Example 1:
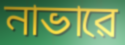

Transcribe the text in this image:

নাভাৱে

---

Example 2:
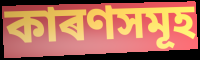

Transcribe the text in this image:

কাৰণসমূহ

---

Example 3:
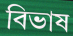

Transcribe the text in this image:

বিভাষ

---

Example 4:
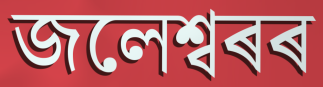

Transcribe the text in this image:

জলেশ্বৰৰ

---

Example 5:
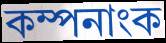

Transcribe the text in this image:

কম্পনাংক